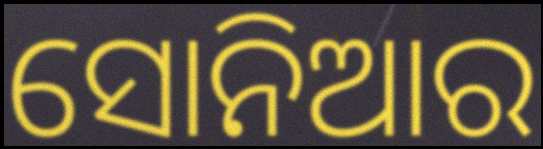
ସୋନିଆର